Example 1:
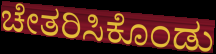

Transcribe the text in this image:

ಚೇತರಿಸಿಕೊಂಡು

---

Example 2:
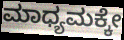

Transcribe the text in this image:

ಮಾಧ್ಯಮಕ್ಕೇ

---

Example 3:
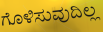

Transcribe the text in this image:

ಗೊಳಿಸುವುದಿಲ್ಲ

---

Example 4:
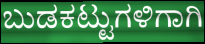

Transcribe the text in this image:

ಬುಡಕಟ್ಟುಗಳಿಗಾಗಿ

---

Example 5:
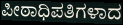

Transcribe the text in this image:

ಪೀಠಾಧಿಪತಿಗಳಾದ